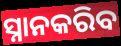
ସ୍ନାନକରିବ